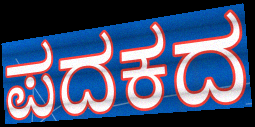
ಪದಕದ